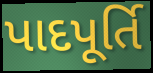
પાદપૂર્તિ